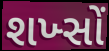
શખ્સોં